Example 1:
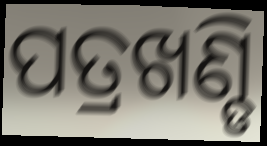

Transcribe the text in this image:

ପତ୍ରଖଣ୍ଡି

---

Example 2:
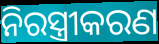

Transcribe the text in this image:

ନିରସ୍ତ୍ରୀକରଣ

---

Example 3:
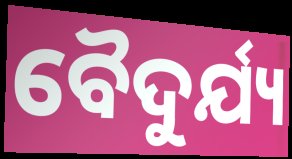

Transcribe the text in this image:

ବୈଦୁର୍ଯ୍ୟ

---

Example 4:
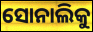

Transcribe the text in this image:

ସୋନାଲିକୁ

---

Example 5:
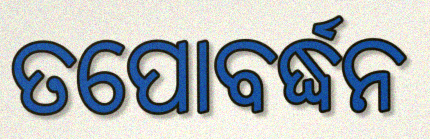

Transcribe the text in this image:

ତପୋବର୍ଦ୍ଧନ